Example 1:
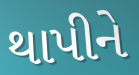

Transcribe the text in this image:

થાપીને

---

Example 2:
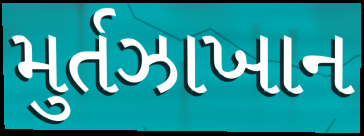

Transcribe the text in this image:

મુર્તઝાખાન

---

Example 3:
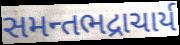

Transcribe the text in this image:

સમન્તભદ્રાચાર્ય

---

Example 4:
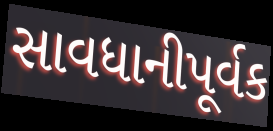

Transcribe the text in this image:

સાવધાનીપૂર્વક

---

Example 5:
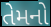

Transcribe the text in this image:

તેમનો